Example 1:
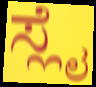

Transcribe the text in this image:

ಸ್ಲೈ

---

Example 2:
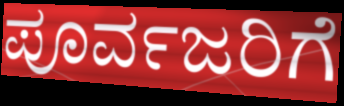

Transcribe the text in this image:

ಪೂರ್ವಜರಿಗೆ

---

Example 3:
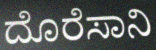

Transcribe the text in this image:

ದೊರೆಸಾನಿ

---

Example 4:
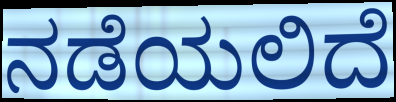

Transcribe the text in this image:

ನಡೆಯಲಿದೆ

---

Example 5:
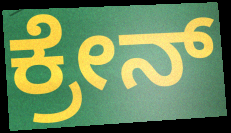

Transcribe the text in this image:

ಕ್ರೇನ್